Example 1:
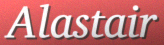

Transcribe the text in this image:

Alastair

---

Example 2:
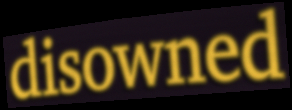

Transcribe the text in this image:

disowned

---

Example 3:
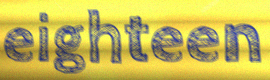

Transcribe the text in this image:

eighteen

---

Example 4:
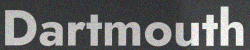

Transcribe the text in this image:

Dartmouth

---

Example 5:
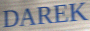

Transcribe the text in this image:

DAREK